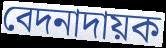
বেদনাদায়ক